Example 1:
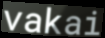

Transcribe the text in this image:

vakai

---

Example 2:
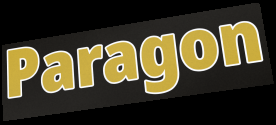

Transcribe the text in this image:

Paragon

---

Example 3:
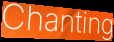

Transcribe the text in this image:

Chanting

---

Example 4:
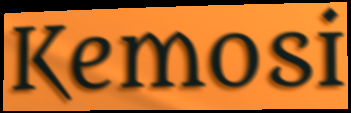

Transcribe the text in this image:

Kemosi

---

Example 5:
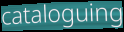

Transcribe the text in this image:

cataloguing